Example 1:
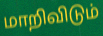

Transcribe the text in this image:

மாறிவிடும்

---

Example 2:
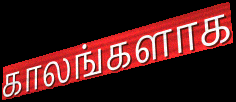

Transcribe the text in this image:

காலங்களாக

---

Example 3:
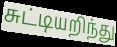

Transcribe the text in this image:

சுட்டியறிந்து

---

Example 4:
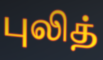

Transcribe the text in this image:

புலித்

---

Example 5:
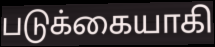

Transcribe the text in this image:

படுக்கையாகி